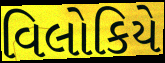
વિલોકિયે